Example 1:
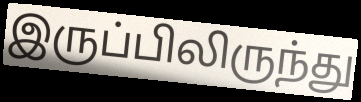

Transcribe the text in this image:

இருப்பிலிருந்து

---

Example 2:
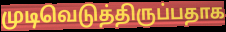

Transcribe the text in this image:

முடிவெடுத்திருப்பதாக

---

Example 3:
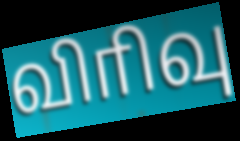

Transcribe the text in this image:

விரிவு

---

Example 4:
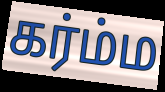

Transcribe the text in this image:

கர்ம்ம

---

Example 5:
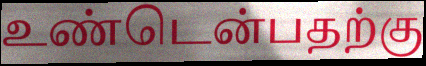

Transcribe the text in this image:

உண்டென்பதற்கு